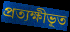
প্রত্যক্ষীভূত